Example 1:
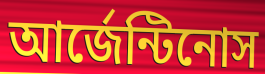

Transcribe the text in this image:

আর্জেন্টিনোস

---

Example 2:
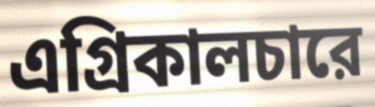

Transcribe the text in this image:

এগ্রিকালচারে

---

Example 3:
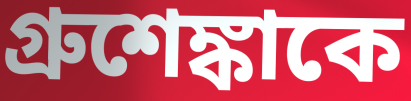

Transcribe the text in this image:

গ্রুশেঙ্কাকে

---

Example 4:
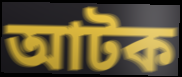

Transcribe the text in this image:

আটক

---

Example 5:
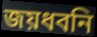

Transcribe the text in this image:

জয়ধবনি